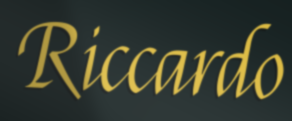
Riccardo